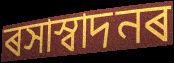
ৰসাস্বাদনৰ